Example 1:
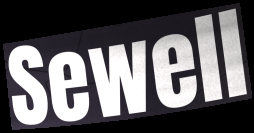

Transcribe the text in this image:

Sewell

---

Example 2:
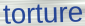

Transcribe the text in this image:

torture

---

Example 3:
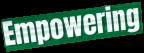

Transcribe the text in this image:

Empowering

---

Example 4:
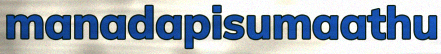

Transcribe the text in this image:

manadapisumaathu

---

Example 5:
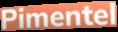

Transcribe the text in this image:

Pimentel